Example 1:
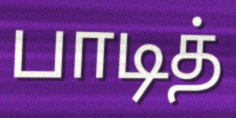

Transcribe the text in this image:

பாடித்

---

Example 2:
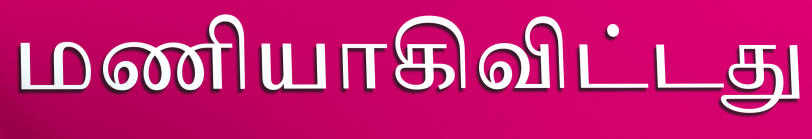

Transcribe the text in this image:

மணியாகிவிட்டது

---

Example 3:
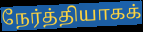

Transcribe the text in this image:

நேர்த்தியாகக்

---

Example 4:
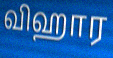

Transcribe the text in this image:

விஹார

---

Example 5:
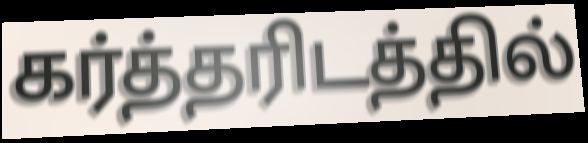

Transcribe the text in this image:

கர்த்தரிடத்தில்